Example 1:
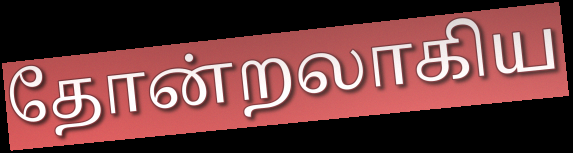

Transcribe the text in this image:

தோன்றலாகிய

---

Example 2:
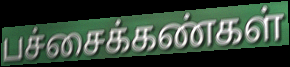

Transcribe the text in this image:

பச்சைக்கண்கள்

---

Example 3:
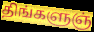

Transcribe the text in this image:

திங்களுஞ்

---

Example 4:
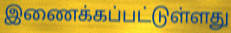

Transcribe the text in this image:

இணைக்கப்பட்டுள்ளது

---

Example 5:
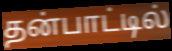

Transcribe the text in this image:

தன்பாட்டில்